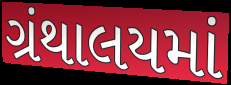
ગ્રંથાલયમાં